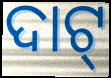
ଦାଟ୍